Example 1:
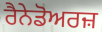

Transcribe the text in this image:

ਰੈਨੇਡੋਅਰਜ਼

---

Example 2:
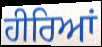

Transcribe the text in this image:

ਹੀਰਿਆਂ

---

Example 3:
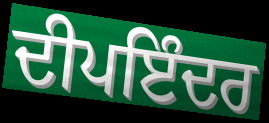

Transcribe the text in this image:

ਦੀਪਇੰਦਰ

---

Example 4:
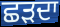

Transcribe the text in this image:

ਛੜਦਾ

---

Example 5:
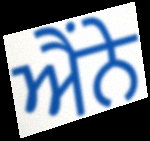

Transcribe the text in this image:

ਐਂਨੇ